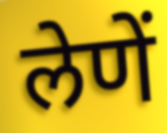
लेणें